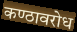
कण्ठावरोध